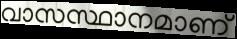
വാസസ്ഥാനമാണ്